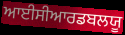
ਆਈਸੀਆਰਡਬਲਯੂ